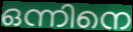
ഒന്നിനെ